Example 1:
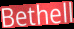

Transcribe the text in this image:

Bethell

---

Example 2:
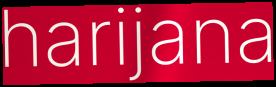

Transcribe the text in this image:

harijana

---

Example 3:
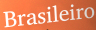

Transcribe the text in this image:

Brasileiro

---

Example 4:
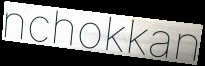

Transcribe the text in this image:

nchokkan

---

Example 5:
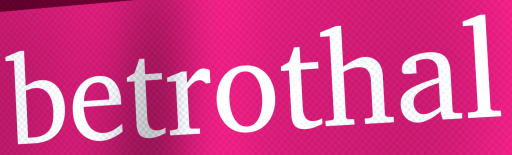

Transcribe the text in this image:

betrothal